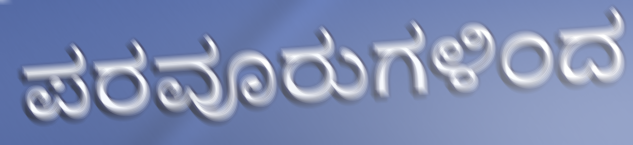
ಪರವೂರುಗಳಿಂದ